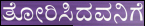
ತೋರಿಸಿದವನಿಗೆ